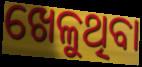
ଖେଳୁଥିବା